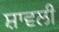
ਸ਼ਾਵਲੀ